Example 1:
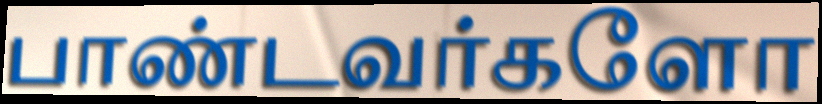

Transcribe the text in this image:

பாண்டவர்களோ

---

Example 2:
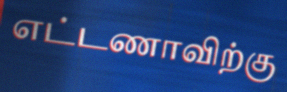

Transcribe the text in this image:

எட்டணாவிற்கு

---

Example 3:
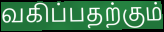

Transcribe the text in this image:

வகிப்பதற்கும்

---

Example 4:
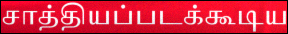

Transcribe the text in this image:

சாத்தியப்படக்கூடிய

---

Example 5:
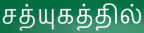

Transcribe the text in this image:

சத்யுகத்தில்